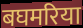
बघमरिया